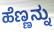
ಹೆಣ್ಣನ್ನು